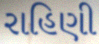
રાહિણી